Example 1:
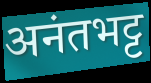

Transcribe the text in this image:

अनंतभट्ट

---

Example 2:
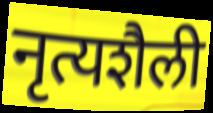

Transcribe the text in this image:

नृत्यशैली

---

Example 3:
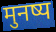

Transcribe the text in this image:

मुनष्य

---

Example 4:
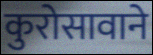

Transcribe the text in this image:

कुरोसावाने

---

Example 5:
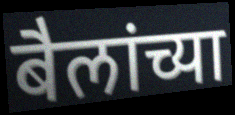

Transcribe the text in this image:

बैलांच्या